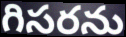
గిసరను